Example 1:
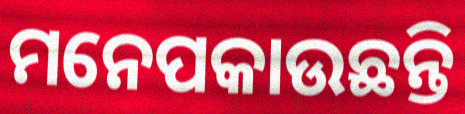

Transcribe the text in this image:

ମନେପକାଉଛନ୍ତି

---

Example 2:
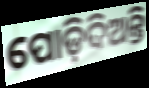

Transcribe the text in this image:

ପୋଡ଼ିଦିଅନ୍ତି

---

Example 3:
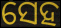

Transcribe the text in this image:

ସେହ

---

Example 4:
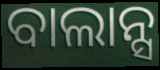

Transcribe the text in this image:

ବାଲାନ୍ସ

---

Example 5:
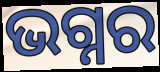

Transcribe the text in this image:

ଭଗ୍ନର